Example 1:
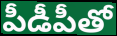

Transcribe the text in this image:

పీడీపీతో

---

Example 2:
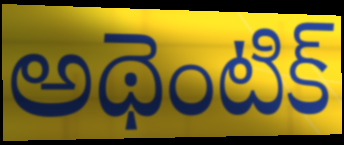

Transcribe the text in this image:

అథెంటిక్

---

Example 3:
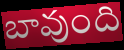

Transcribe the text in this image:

బావుంది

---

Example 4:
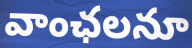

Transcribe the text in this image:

వాంఛలనూ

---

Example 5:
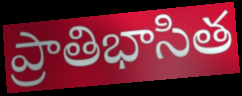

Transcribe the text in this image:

ప్రాతిభాసిత